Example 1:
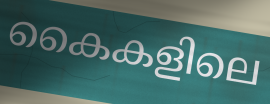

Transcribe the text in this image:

കൈകളിലെ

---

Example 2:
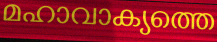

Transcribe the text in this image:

മഹാവാക്യത്തെ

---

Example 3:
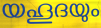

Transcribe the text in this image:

യഹൂദയും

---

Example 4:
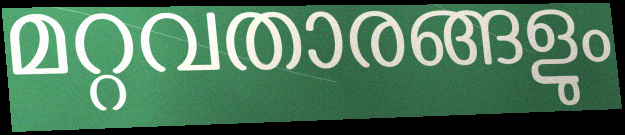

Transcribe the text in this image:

മറ്റവതാരങ്ങളും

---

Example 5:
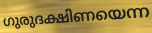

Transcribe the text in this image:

ഗുരുദക്ഷിണയെന്ന